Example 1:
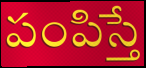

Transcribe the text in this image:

పంపిస్తే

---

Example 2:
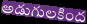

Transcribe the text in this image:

అడుగులకింద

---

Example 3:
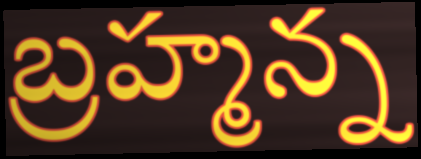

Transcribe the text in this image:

బ్రహ్మన్న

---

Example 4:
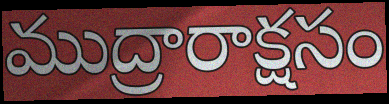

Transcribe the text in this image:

ముద్రారాక్షసం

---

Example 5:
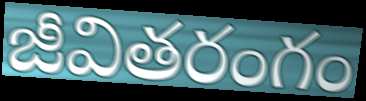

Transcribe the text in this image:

జీవితరంగం